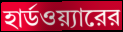
হার্ডওয়্যারের